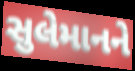
સુલેમાનને